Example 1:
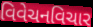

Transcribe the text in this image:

વિવેચનવિચાર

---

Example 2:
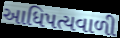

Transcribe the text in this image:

આધિપત્યવાળી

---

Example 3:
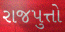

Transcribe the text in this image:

રાજપુત્તો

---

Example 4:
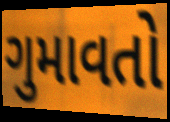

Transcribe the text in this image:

ગુમાવતો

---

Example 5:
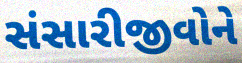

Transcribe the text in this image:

સંસારીજીવોને